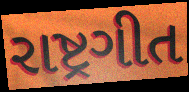
રાષ્ટ્રગીત